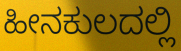
ಹೀನಕುಲದಲ್ಲಿ